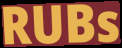
RUBs